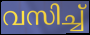
വസിച്ച്